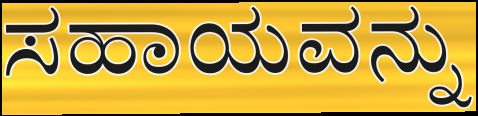
ಸಹಾಯವನ್ನು